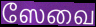
ஸேவை